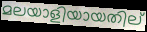
മലയാളിയായതില്